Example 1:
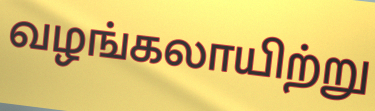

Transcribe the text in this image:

வழங்கலாயிற்று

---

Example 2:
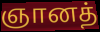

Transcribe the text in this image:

ஞானத்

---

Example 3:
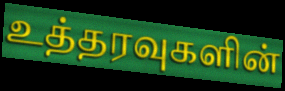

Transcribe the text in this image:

உத்தரவுகளின்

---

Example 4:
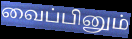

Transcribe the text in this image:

வைப்பினும்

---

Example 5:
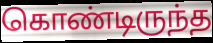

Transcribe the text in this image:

கொண்டிருந்த